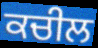
ਕਚੀਲ